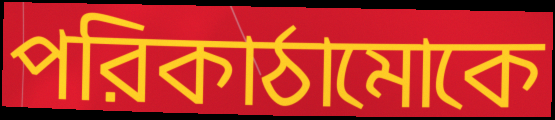
পরিকাঠামোকে